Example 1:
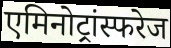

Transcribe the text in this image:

एमिनोट्रांस्फरेज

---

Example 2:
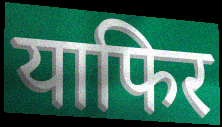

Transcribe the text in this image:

याफिर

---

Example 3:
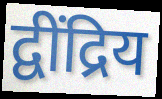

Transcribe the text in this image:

द्वींद्रिय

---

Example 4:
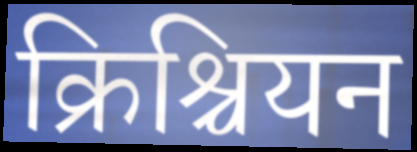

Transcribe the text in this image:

क्रिश्चियन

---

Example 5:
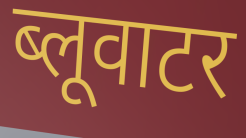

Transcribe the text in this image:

ब्लूवाटर